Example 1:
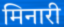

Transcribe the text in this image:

मिनारी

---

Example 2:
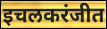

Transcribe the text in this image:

इचलकरंजीत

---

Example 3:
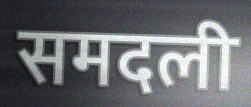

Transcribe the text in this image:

समदली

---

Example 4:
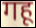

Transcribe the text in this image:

गहू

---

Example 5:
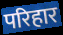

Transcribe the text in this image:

परिहार